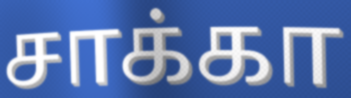
சாக்கா